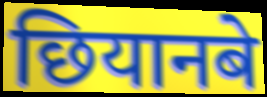
छियानबे